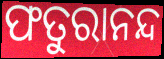
ଫତୁରାନନ୍ଦ